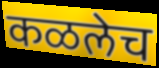
कळलेच